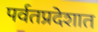
पर्वतप्रदेशात